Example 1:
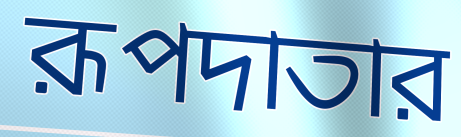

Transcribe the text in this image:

রূপদাতার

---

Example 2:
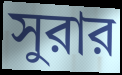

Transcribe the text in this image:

সুরার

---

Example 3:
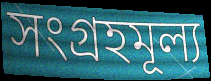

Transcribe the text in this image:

সংগ্রহমূল্য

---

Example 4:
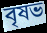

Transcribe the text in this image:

বৃষভ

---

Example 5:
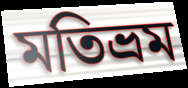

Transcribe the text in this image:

মতিভ্রম